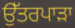
ਉੱਤਰਪਾੜਾ